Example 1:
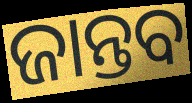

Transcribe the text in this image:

ଜାନ୍ତବ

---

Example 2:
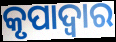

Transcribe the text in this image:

କୃପାଦ୍ଵାର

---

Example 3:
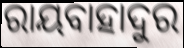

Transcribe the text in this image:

ରାୟବାହାଦୁର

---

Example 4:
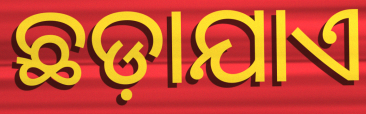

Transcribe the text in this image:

ଛଡ଼ାଯାଏ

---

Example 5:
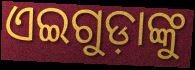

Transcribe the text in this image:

ଏଇଗୁଡ଼ାଙ୍କୁ